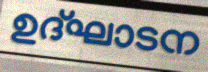
ഉദ്ഘാടന